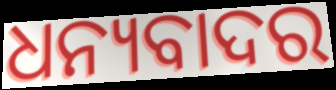
ଧନ୍ୟବାଦର